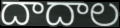
దాదాల